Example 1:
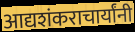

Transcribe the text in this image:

आद्यशंकराचार्यांनी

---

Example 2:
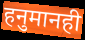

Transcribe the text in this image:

हनुमानही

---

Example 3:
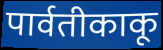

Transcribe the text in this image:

पार्वतीकाकू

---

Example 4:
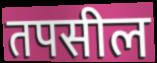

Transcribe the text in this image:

तपसील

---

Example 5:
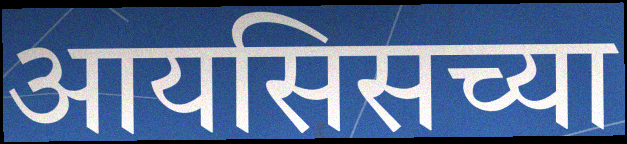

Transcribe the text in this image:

आयसिसच्या